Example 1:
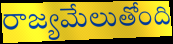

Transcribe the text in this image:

రాజ్యమేలుతోంది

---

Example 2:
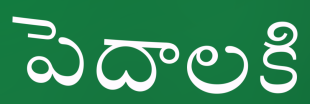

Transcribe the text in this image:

పెదాలకి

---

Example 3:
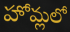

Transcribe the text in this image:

హోమ్లలో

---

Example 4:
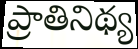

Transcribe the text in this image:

ప్రాతినిథ్య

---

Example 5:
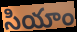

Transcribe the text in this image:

సియాం